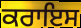
ਕਰਾਇਸ